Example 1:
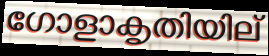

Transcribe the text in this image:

ഗോളാകൃതിയില്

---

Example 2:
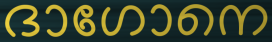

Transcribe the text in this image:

ദാഗോനെ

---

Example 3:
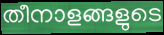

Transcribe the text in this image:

തീനാളങ്ങളുടെ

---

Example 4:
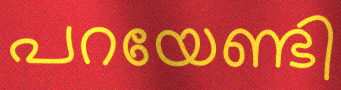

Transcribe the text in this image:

പറയേണ്ടി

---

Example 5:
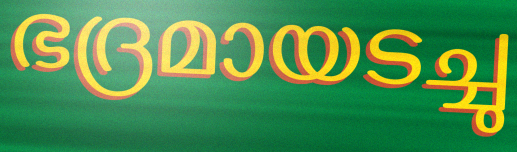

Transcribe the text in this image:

ഭദ്രമായടച്ചു